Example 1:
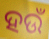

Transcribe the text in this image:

ହଉଁ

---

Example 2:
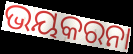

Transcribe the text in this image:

ଭୟକରନା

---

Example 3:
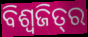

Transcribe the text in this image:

ବିଶ୍ୱଜିତ୍‌ର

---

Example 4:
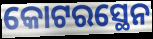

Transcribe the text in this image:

କୋଟରସ୍ଥେନ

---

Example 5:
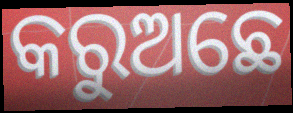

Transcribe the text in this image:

କରୁଅଛେ